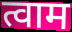
त्वाम